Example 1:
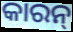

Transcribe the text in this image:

କାରନ୍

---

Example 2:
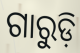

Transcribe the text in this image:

ଗାରୁଡ଼ି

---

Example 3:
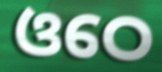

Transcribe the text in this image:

ଓଠେ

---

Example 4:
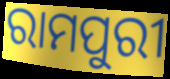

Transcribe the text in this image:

ରାମପୁରୀ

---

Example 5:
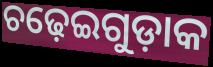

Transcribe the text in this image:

ଚଢ଼େଇଗୁଡ଼ାକ